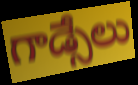
గాడ్సేలు